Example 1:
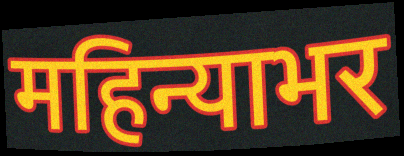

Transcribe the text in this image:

महिन्याभर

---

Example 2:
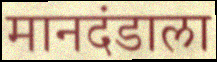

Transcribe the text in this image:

मानदंडाला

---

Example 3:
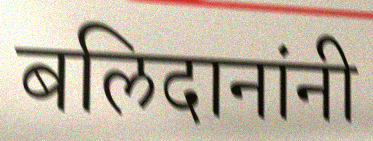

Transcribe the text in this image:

बलिदानांनी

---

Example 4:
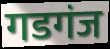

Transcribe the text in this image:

गडगंज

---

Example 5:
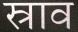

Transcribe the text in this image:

स्राव